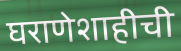
घराणेशाहीची